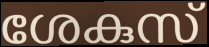
ശേകുസ്